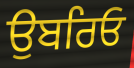
ਉਬਰਿਓ